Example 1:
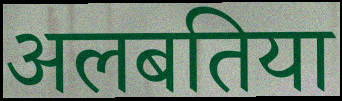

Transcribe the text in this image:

अलबतिया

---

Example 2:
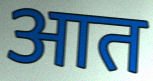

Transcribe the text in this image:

आत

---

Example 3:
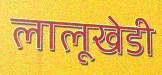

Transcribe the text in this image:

लालूखेडी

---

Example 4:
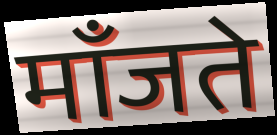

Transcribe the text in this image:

माँजते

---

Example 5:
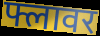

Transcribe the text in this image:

फ्लावर